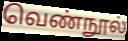
வெண்நூல்